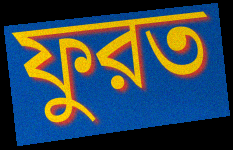
ফুরত